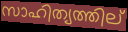
സാഹിത്യത്തില്